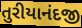
તુરીયાનંદજી